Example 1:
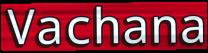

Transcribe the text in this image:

Vachana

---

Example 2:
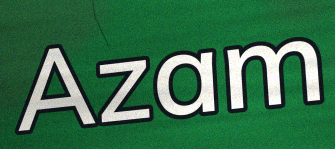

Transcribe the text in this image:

Azam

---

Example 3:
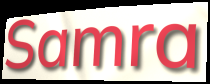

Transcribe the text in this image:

Samra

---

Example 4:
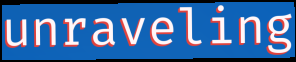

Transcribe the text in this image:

unraveling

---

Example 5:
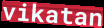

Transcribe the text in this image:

vikatan